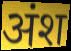
अंश